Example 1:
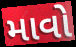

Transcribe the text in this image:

માવો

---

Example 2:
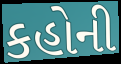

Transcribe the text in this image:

કહોની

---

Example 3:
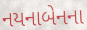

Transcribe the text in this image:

નયનાબેનના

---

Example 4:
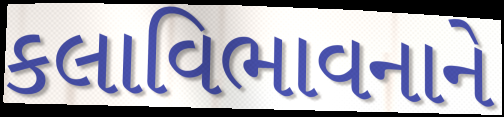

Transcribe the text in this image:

કલાવિભાવનાને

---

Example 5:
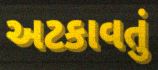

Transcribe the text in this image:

અટકાવતું